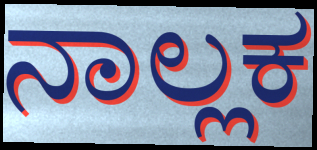
ನಾಲ್ಲಕ